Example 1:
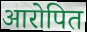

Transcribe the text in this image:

आरोपित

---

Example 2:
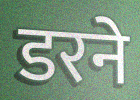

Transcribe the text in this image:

डरने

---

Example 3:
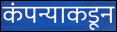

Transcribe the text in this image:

कंपन्याकडून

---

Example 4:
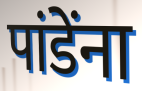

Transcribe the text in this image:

पांडेंना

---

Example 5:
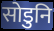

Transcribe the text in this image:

सोडुनि